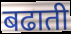
बढाती